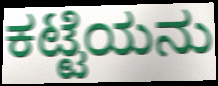
ಕಟ್ಟೆಯನು